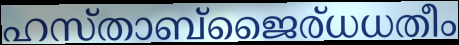
ഹസ്താബ്ജൈര്ധധതീം